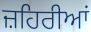
ਜ਼ਹਿਰੀਆਂ